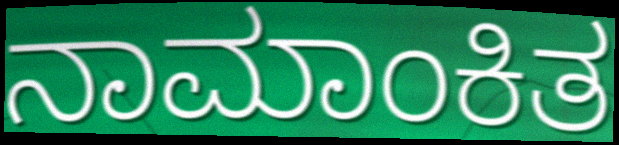
ನಾಮಾಂಕಿತ